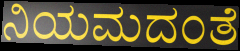
ನಿಯಮದಂತೆ